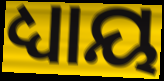
ଧ୍ୟାୟ